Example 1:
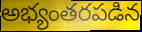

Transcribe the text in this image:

అభ్యంతరపడిన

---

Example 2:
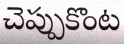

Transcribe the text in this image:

చెప్పుకొంట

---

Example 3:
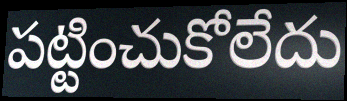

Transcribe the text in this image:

పట్టించుకోలేదు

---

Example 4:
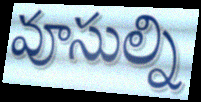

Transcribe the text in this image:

వూసుల్ని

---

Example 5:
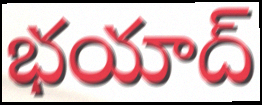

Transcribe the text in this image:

భయాద్